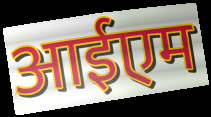
आईएम